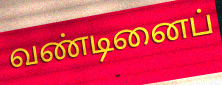
வண்டினைப்